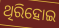
ଥିରିହୋଇ